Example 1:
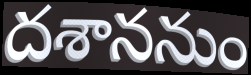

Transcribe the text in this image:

దశాననుం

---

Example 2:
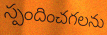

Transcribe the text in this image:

స్పందించగలను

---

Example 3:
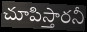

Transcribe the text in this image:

చూపిస్తారనీ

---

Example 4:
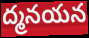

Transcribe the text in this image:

ద్మనయన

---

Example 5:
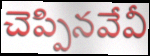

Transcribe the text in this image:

చెప్పినవేవీ